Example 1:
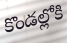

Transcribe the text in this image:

కొండల్లోకి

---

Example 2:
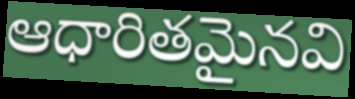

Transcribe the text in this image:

ఆధారితమైనవి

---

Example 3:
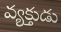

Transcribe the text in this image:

వ్యక్తుడు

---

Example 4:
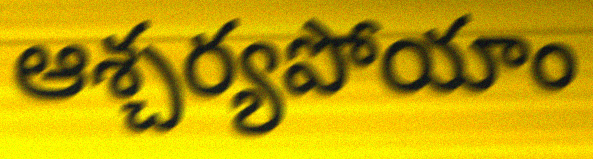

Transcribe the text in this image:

ఆశ్చర్యపోయాం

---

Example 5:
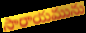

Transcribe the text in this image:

సారాయమును